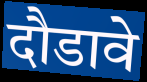
दौडावे